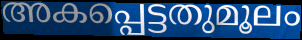
അകപ്പെട്ടതുമൂലം